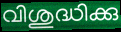
വിശുദ്ധിക്കു